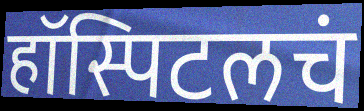
हॉस्पिटलचं